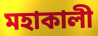
মহাকালী